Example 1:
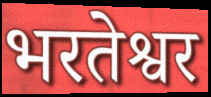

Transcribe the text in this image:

भरतेश्वर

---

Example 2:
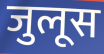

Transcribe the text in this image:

जुलूस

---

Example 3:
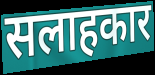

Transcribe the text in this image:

सलाहकार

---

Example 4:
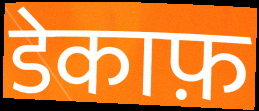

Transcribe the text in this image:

डेकाफ़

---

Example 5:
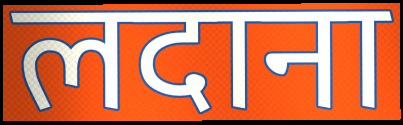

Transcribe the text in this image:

लदाना